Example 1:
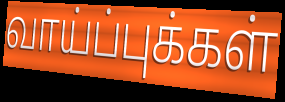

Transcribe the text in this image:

வாய்ப்புக்கள்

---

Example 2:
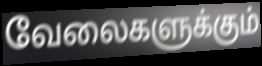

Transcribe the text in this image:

வேலைகளுக்கும்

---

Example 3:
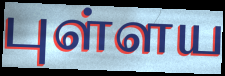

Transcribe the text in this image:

புள்ளய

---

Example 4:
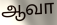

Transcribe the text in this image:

ஆவா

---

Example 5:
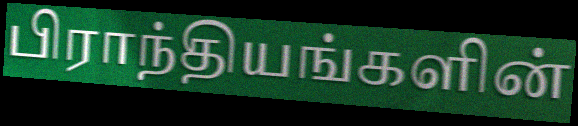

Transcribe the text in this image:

பிராந்தியங்களின்